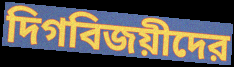
দিগবিজয়ীদের